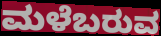
ಮಳೆಬರುವ